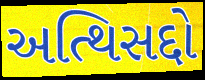
અત્થિસદ્દો